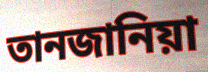
তানজানিয়া